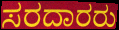
ಸರದಾರರು